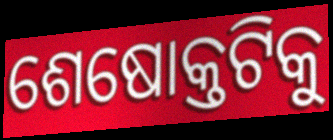
ଶେଷୋକ୍ତଟିକୁ